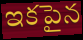
ఇకపైన